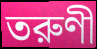
তরুণী